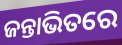
ଜନ୍ତାଭିତରେ